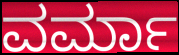
ವರ್ಮಾ